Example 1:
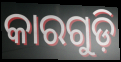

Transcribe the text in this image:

କାରଗୁଡ଼ି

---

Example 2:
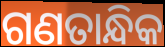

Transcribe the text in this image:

ଗଣତାନ୍ଧିକ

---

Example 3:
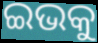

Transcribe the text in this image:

ଇଭକୁ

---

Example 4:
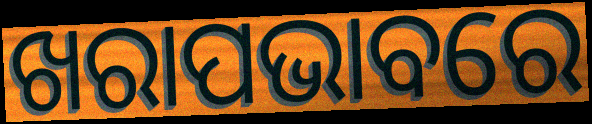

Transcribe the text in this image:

ଖରାପଭାବରେ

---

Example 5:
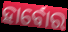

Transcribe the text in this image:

ହାର୍ବୋର